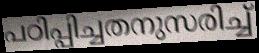
പഠിപ്പിച്ചതനുസരിച്ച്